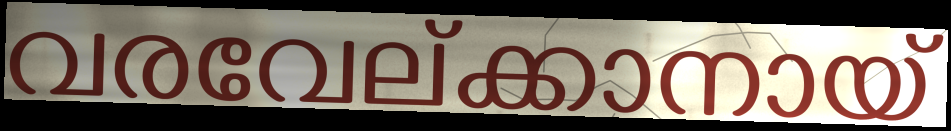
വരവേല്ക്കാനായ്